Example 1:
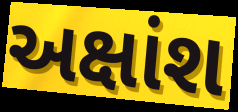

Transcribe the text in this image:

અક્ષાંશ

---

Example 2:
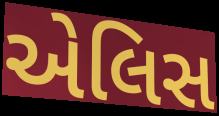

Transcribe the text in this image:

એલિસ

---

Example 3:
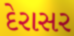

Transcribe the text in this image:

દેરાસર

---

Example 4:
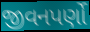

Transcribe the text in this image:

જીવનપર્ણો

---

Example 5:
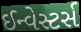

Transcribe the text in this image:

ઈન્વેસ્ટર્સ